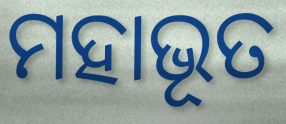
ମହାଭୂତ